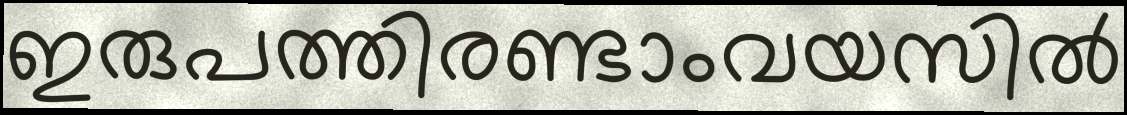
ഇരുപത്തിരണ്ടാംവയസിൽ